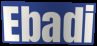
Ebadi